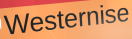
Westernise